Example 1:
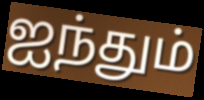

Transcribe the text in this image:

ஐந்தும்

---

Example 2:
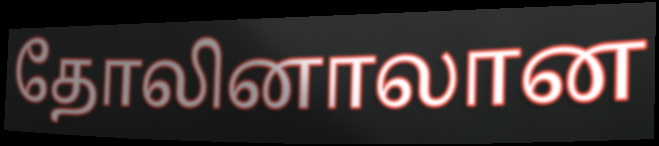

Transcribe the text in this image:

தோலினாலான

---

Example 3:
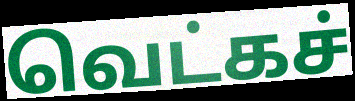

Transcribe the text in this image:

வெட்கச்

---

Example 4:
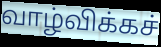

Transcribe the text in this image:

வாழ்விக்கச்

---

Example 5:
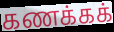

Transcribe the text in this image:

கணக்கக்